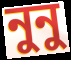
নুনু